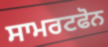
ਸਾਮਰਟਫੋਨ